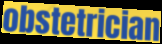
obstetrician